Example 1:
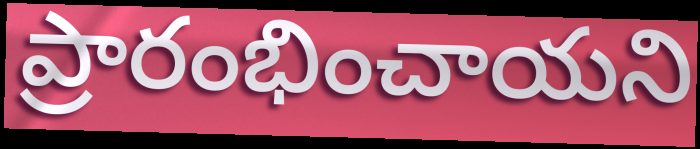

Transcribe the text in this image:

ప్రారంభించాయని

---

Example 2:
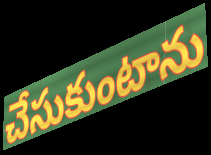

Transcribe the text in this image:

చేసుకుంటాను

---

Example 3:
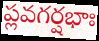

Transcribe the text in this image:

ప్లవగర్షభాః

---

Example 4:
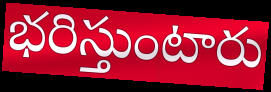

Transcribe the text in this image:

భరిస్తుంటారు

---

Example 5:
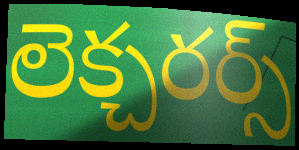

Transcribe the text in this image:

లెక్చరర్స్